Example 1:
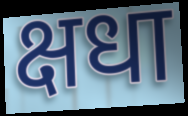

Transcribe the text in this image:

क्षधा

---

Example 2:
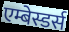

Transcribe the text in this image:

एम्बेस्डर्स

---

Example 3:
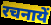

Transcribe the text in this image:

रचनायें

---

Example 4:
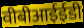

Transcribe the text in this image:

वीबीआईईडी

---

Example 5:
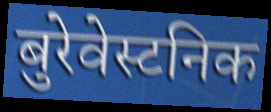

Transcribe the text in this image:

बुरेवेस्टनिक